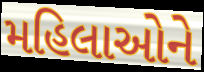
મહિલાઓને